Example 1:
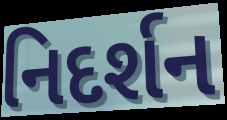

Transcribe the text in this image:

નિદર્શન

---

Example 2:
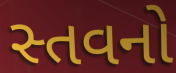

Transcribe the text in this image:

સ્તવનો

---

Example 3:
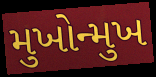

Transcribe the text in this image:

મુખોન્મુખ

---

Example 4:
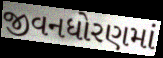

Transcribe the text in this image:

જીવનધોરણમાં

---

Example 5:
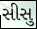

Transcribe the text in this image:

સીસુ